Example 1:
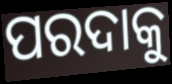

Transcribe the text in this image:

ପରଦାକୁ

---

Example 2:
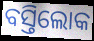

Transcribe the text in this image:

ବସ୍ତିଲୋକ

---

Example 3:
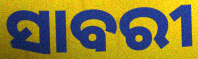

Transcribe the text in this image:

ସାବରୀ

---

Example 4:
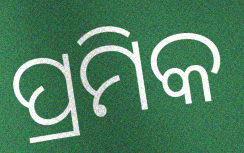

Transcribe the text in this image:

ପ୍ରମିକ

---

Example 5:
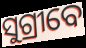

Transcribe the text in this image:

ସୁଗ୍ରୀବେ